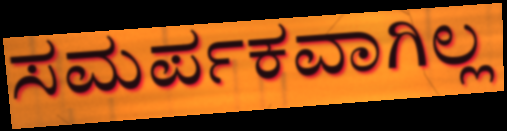
ಸಮರ್ಪಕವಾಗಿಲ್ಲ